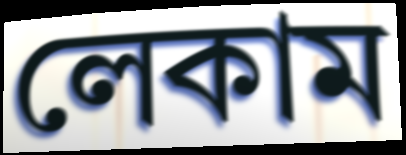
লেকাম